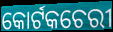
କୋର୍ଟକଚେରୀ